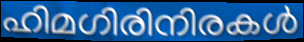
ഹിമഗിരിനിരകൾ